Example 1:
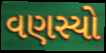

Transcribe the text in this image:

વણસ્યો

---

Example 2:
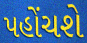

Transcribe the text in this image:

પહોંચશે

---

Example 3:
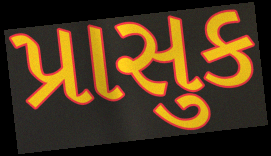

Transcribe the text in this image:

પ્રાસુક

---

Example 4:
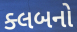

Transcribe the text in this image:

ક્લબનો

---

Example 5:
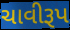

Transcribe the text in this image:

ચાવીરૂપ